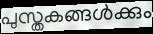
പുസ്തകങ്ങൾക്കും